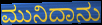
ಮುನಿದಾನು